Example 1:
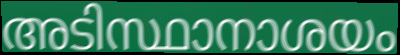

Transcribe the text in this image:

അടിസ്ഥാനാശയം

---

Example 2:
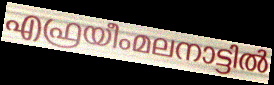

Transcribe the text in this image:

എഫ്രയീംമലനാട്ടിൽ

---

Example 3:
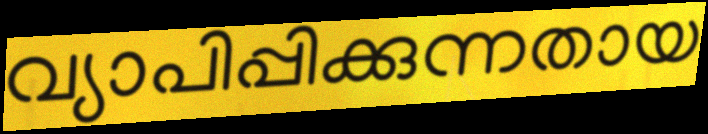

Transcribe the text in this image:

വ്യാപിപ്പിക്കുന്നതായ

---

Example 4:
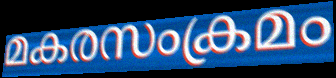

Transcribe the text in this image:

മകരസംക്രമം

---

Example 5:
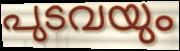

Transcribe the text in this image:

പുടവയും